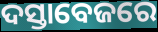
ଦସ୍ତାବେଜରେ